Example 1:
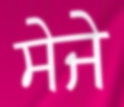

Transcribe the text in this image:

ਸੇਜੇ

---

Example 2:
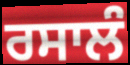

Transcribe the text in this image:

ਰਸਾਲੰ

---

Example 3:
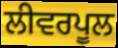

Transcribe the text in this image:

ਲੀਵਰਪੂਲ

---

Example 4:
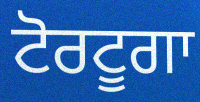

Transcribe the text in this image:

ਟੋਰਟੂਗਾ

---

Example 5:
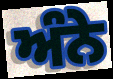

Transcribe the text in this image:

ਅੰਨੇ